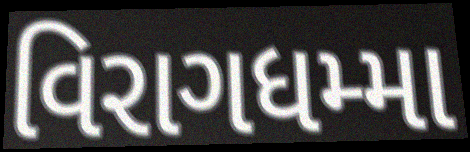
વિરાગધમ્મા